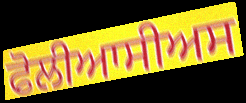
ਫੋਲੀਆਸੀਅਸ